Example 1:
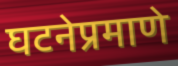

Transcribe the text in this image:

घटनेप्रमाणे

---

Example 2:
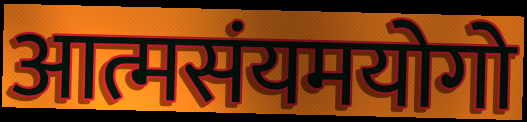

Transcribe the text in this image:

आत्मसंयमयोगो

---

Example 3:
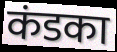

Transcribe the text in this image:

कंडका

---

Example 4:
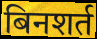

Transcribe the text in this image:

बिनशर्त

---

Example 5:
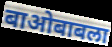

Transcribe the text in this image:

बाओबाबला